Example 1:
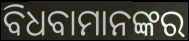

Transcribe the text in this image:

ବିଧବାମାନଙ୍କର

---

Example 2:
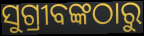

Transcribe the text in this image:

ସୁଗ୍ରୀବଙ୍କଠାରୁ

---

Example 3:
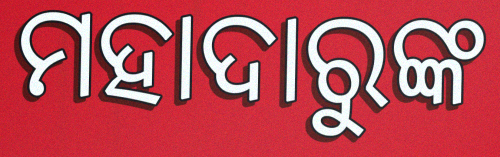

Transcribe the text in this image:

ମହାଦାରୁଙ୍କ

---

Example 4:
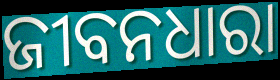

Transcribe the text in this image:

ଜୀବନଧାରା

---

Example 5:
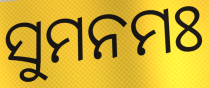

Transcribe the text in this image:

ସୁମନମଃ